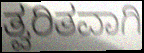
ತ್ವರಿತವಾಗಿ